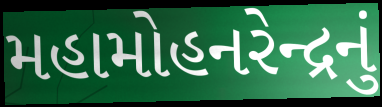
મહામોહનરેન્દ્રનું